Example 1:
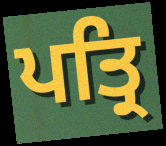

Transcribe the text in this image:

ਪਤ੍ਰਿ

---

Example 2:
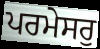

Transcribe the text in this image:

ਪਰਮੇਸਰੁ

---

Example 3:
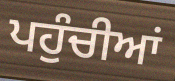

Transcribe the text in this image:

ਪਹੁੰਚੀਆਂ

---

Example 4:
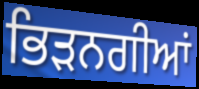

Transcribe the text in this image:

ਭਿੜਨਗੀਆਂ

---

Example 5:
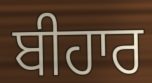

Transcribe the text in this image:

ਬੀਹਾਰ